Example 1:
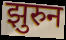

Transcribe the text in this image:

झुरुन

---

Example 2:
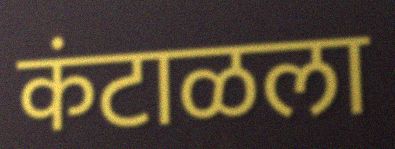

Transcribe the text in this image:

कंटाळला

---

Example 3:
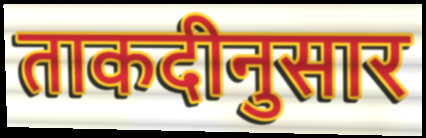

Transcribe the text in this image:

ताकदीनुसार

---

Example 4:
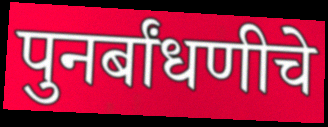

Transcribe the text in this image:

पुनर्बांधणीचे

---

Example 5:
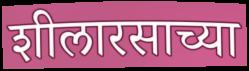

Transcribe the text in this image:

शीलारसाच्या